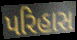
પરિહાસ